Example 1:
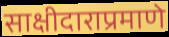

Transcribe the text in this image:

साक्षीदाराप्रमाणे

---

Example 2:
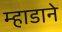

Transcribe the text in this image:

म्हाडाने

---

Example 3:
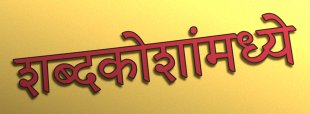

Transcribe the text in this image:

शब्दकोशांमध्ये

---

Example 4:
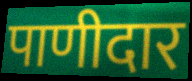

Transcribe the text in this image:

पाणीदार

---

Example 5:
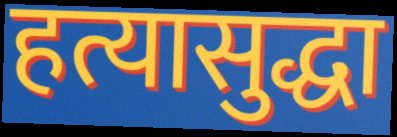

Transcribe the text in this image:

हत्यासुद्धा